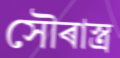
সৌৰাস্ত্ৰ